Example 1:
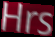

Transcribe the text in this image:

Hrs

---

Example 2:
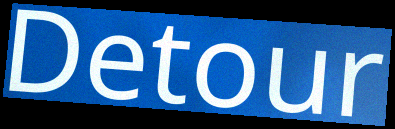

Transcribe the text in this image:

Detour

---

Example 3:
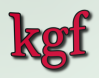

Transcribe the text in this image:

kgf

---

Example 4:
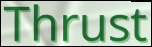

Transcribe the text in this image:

Thrust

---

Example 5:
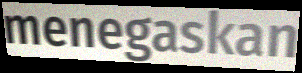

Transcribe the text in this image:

menegaskan